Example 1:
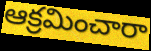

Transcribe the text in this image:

ఆక్రమించారా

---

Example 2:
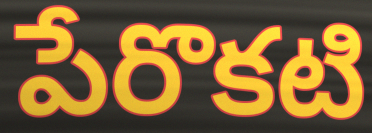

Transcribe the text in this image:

పేరొకటి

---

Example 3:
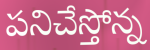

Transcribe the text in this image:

పనిచేస్తోన్న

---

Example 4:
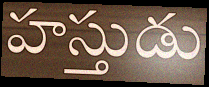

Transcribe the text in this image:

హస్తుడు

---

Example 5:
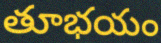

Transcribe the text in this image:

తూభయం